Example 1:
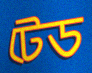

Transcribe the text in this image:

টেড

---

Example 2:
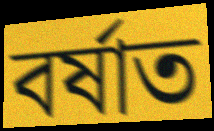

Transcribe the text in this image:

বৰ্ষাত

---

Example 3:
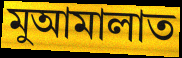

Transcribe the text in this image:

মুআমালাত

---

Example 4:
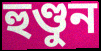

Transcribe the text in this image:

হুণ্ডুন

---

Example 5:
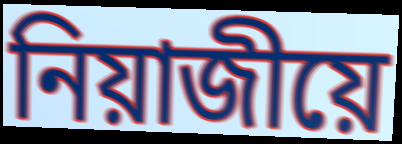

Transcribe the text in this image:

নিয়াজীয়ে